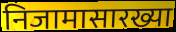
निजामासारख्या